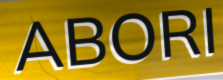
ABORI